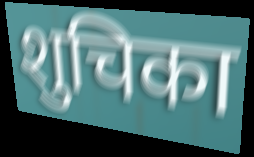
शुचिका